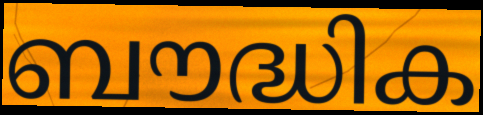
ബൗദ്ധിക